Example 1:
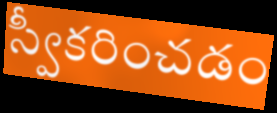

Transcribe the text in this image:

స్వీకరించడం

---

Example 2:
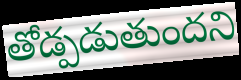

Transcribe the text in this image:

తోడ్పడుతుందని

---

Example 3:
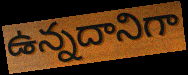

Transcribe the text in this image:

ఉన్నదానిగా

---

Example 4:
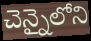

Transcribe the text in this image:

చెన్నైలోని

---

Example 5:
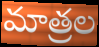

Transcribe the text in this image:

మాత్రల